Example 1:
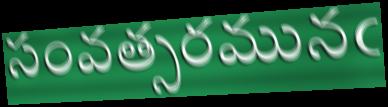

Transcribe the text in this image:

సంవత్సరమునఁ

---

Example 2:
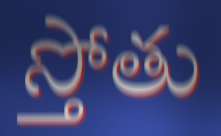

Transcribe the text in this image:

స్తోతు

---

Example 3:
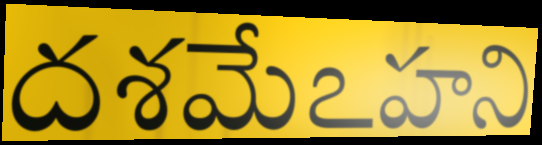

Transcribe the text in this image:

దశమేఽహని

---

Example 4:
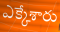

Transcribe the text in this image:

ఎక్కేశారు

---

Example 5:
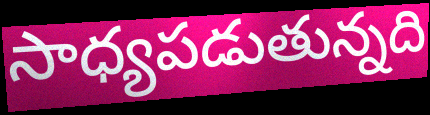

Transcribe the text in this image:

సాధ్యపడుతున్నది